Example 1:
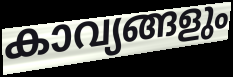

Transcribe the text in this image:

കാവ്യങ്ങളും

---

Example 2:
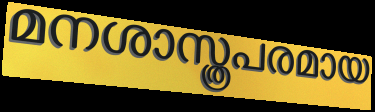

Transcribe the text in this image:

മനശാസ്ത്രപരമായ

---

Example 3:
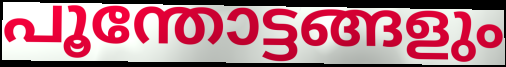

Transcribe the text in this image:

പൂന്തോട്ടങ്ങളും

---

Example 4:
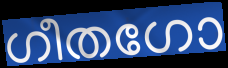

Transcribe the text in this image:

ഗീതഗോ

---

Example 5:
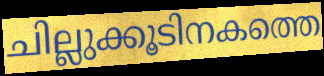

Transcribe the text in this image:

ചില്ലുക്കൂടിനകത്തെ